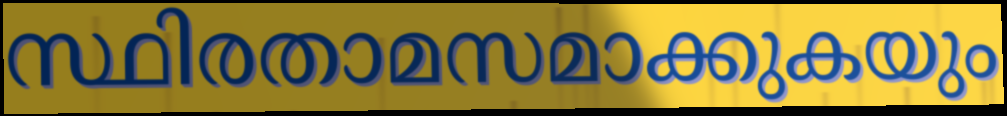
സ്ഥിരതാമസമാക്കുകയും